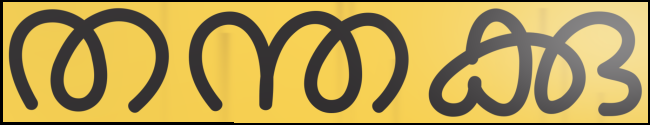
തന്തക്കു